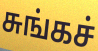
சுங்கச்